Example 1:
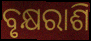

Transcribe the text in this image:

ବୃକ୍ଷରାଶି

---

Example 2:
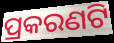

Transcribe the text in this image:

ପ୍ରକରଣଟି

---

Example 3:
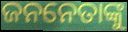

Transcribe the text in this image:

ଜନନେତାଙ୍କୁ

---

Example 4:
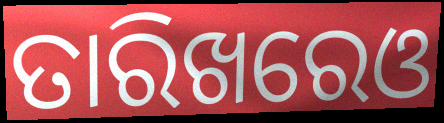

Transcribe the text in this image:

ତାରିଖରେଓ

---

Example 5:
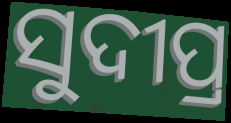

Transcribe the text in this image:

ସୁଦୀପ୍ର